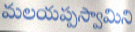
మలయప్పస్వామిని